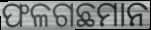
ଫଳଗଛମାନ